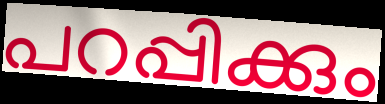
പറപ്പിക്കും